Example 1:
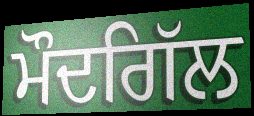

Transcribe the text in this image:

ਮੌਦਗਿੱਲ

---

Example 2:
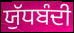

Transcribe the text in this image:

ਯੁੱਧਬੰਦੀ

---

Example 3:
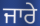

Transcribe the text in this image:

ਜਾਰੇ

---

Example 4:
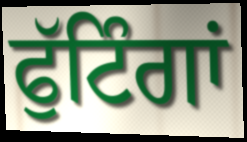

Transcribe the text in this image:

ਫੁੱਟਿੰਗਾਂ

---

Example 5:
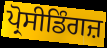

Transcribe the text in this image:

ਪ੍ਰੋਸੀਡਿੰਗਜ਼